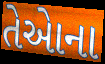
તેએાના